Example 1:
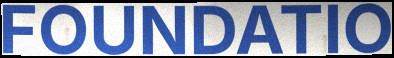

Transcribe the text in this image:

FOUNDATIO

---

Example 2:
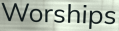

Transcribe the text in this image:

Worships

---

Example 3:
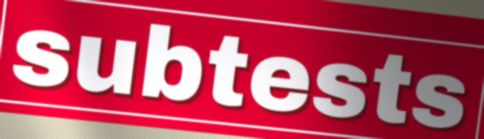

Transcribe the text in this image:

subtests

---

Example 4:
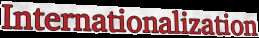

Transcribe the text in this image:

Internationalization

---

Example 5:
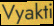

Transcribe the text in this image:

Vyakti